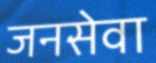
जनसेवा